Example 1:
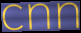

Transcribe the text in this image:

cnn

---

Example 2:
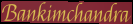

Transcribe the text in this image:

Bankimchandra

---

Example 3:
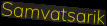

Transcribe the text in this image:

Samvatsarik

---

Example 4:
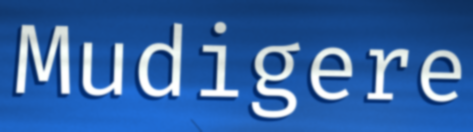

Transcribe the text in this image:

Mudigere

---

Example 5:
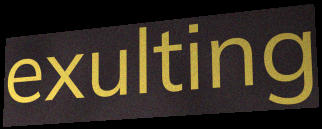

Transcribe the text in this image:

exulting